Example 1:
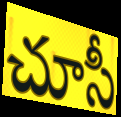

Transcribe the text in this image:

చూసీ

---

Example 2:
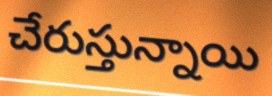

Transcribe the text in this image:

చేరుస్తున్నాయి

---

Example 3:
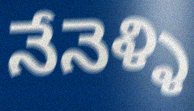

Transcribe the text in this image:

నేనెళ్ళి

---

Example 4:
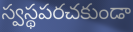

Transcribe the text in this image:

స్వస్థపరచకుండా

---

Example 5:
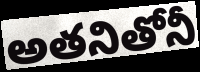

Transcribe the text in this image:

అతనితోనీ